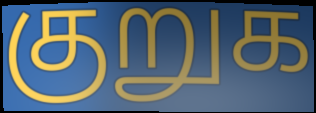
குறுக